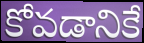
కోవడానికే